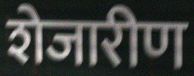
शेजारीण